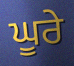
ਘੂਰੇ